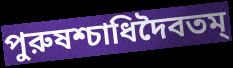
পুরুষশ্চাধিদৈবতম্